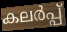
കലർപ്പ്